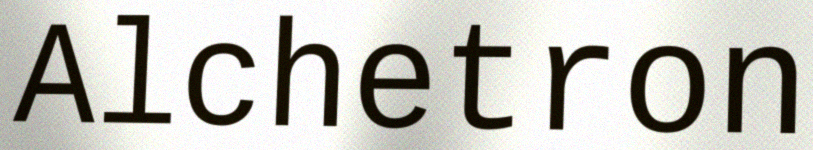
Alchetron